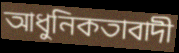
আধুনিকতাবাদী